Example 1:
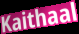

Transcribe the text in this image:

Kaithaal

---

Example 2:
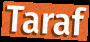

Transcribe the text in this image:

Taraf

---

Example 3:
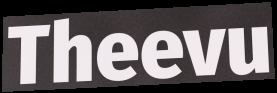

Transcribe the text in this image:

Theevu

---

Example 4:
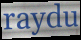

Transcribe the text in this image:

raydu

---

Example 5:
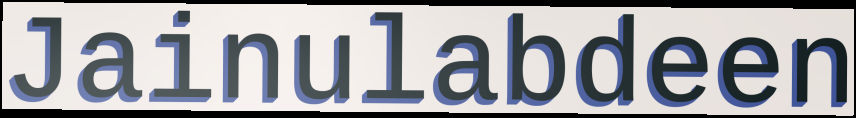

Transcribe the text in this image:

Jainulabdeen